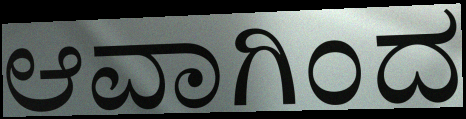
ಆವಾಗಿಂದ